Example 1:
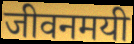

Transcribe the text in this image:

जीवनमयी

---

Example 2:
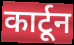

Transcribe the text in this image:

कार्टून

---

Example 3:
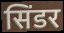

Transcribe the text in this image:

सिंडर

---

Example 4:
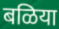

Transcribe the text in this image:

बळिया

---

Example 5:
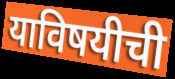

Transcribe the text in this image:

याविषयीची